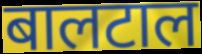
बालटाल